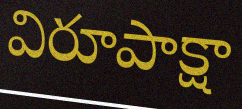
విరూపాక్షా